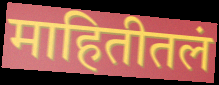
माहितीतलं